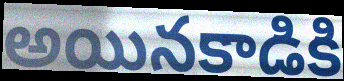
అయినకాడికి